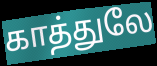
காத்துலே